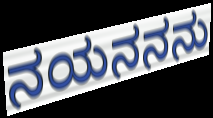
ನಯನನನು